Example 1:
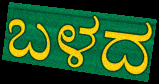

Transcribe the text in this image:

ಬಳದ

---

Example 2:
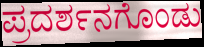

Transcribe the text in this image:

ಪ್ರದರ್ಶನಗೊಂಡು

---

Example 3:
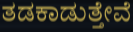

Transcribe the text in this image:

ತಡಕಾಡುತ್ತೇವೆ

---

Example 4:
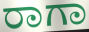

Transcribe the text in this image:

ರಾಗಾ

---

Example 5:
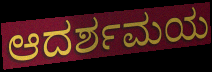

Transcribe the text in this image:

ಆದರ್ಶಮಯ